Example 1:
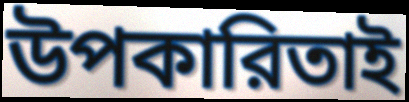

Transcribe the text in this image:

উপকারিতাই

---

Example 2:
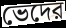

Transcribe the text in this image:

ভেদের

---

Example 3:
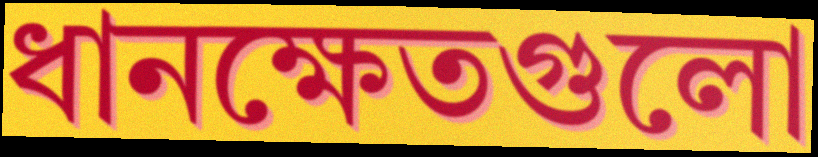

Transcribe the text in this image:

ধানক্ষেতগুলো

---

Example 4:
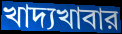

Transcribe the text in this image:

খাদ্যখাবার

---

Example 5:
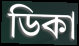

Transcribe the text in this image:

ডিকা